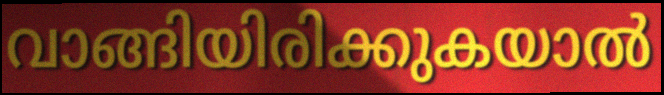
വാങ്ങിയിരിക്കുകയാൽ